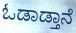
ಓಡಾಡ್ತಾನೆ